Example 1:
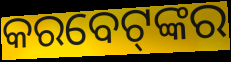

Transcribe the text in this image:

କରବେଟ୍‌ଙ୍କର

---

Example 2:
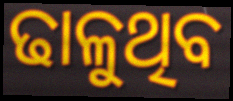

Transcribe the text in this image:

ଢାଳୁଥିବ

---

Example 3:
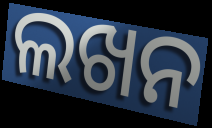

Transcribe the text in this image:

ଲଖନ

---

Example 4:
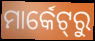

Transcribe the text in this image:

ମାର୍କେଟ୍‌ରୁ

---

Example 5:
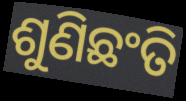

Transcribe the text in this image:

ଶୁଣିଛଂତି